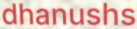
dhanushs